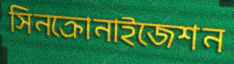
সিনক্রোনাইজেশন